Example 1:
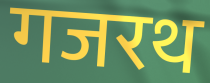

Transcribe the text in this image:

गजरथ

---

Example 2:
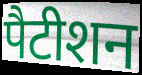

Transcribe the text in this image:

पैटीशन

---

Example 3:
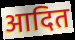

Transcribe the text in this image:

आदित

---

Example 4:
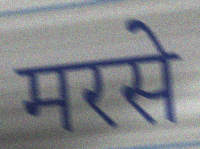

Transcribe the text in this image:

मरसे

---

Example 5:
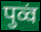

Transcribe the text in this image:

पुव्वं